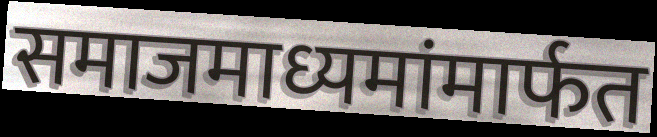
समाजमाध्यमांमार्फत